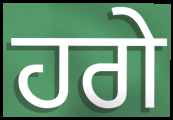
ਹਗੇ